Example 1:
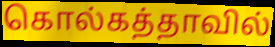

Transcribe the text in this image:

கொல்கத்தாவில்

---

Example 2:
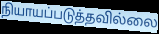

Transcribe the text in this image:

நியாயப்படுத்தவில்லை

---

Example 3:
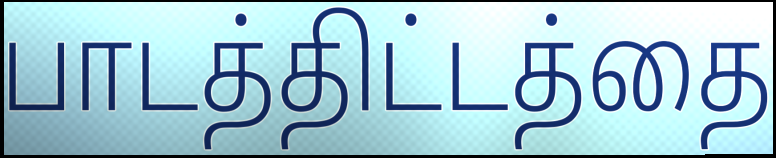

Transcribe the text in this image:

பாடத்திட்டத்தை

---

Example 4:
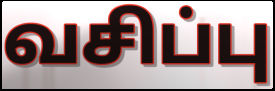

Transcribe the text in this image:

வசிப்பு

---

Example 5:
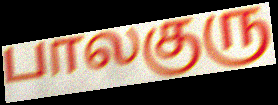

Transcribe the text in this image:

பாலகுரு